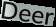
Deer